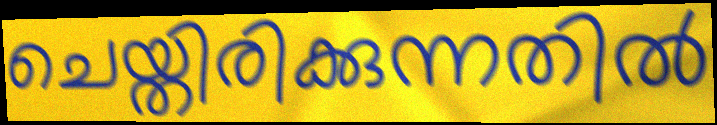
ചെയ്തിരിക്കുന്നതിൽ